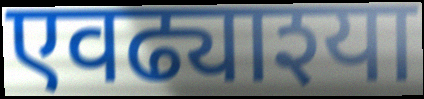
एवढ्याश्या